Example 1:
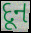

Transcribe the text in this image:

દૂન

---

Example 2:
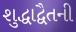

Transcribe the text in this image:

શુદ્ધાદ્વૈતની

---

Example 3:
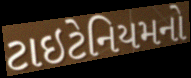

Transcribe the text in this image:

ટાઇટેનિયમનો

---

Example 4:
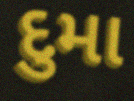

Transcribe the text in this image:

દુમા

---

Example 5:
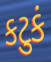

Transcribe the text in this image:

કટુકં